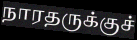
நாரதருக்குச்